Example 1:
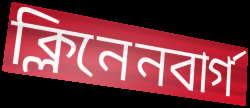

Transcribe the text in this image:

ক্লিনেনবার্গ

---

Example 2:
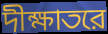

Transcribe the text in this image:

দীক্ষাতরে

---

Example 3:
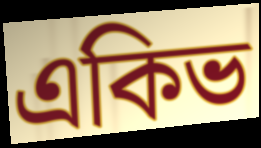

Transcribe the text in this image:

একিভ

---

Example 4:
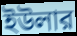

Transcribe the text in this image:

ইউলার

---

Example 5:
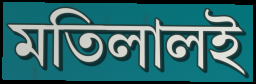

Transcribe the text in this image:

মতিলালই